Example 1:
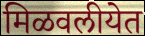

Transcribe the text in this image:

मिळवलीयेत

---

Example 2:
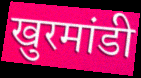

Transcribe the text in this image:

खुरमांडी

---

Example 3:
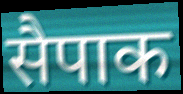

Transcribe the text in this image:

सैपाक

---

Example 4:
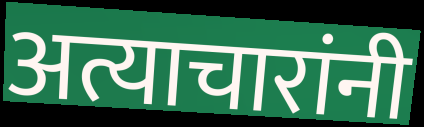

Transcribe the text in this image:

अत्याचारांनी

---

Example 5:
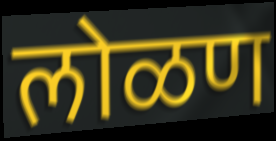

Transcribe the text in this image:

लोळण